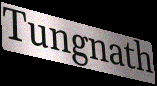
Tungnath